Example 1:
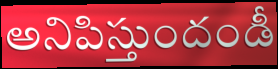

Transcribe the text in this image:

అనిపిస్తుందండీ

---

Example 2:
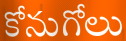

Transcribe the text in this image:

కోనుగోలు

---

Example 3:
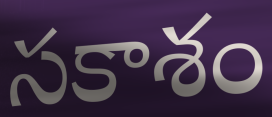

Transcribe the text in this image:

సకాశం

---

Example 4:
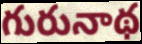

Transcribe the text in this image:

గురునాథ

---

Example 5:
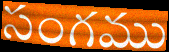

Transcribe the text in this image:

సంగము